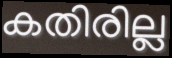
കതിരില്ല